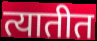
त्यातीत